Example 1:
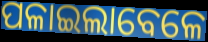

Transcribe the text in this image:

ପଳାଇଲାବେଳେ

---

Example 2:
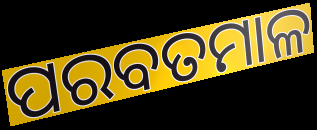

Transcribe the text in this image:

ପରବତମାଳ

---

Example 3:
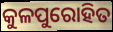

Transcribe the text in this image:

କୁଳପୁରୋହିତ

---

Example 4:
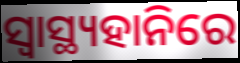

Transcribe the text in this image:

ସ୍ୱାସ୍ଥ୍ୟହାନିରେ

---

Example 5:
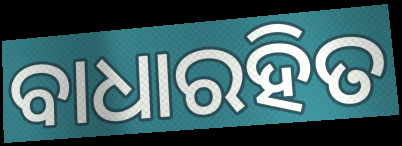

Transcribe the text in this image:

ବାଧାରହିତ